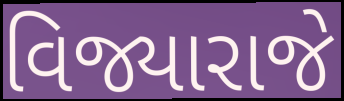
વિજ્યારાજે